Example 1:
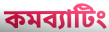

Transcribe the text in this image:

কমব্যাটিং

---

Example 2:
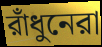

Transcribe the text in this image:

রাঁধুনেরা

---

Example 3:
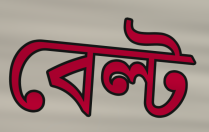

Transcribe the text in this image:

বেল্ট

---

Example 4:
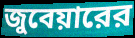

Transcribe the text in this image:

জুবেয়ারের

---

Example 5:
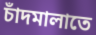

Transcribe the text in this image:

চাঁদমালাতে